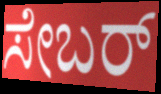
ಸೇಬರ್